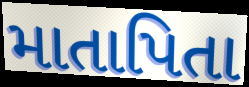
માતાપિતા